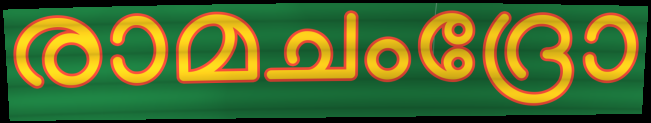
രാമചംദ്രോ